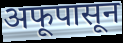
अफूपासून